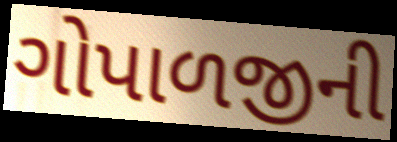
ગોપાળજીની